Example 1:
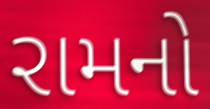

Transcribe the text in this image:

રામનો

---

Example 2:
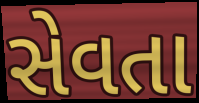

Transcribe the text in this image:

સેવતા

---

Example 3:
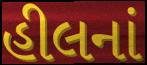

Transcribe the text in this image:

હીલનાં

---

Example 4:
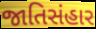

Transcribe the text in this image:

જાતિસંહાર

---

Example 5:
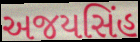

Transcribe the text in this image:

અજયસિંહ